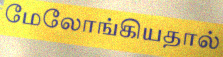
மேலோங்கியதால்